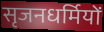
सृजनधर्मियों